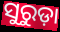
ସୁରୁଡ଼ା